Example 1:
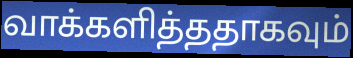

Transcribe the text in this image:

வாக்களித்ததாகவும்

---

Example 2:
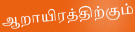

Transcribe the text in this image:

ஆறாயிரத்திற்கும்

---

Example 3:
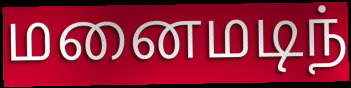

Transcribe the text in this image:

மனைமடிந்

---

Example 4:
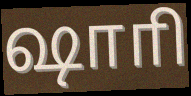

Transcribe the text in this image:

ஷாரி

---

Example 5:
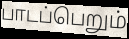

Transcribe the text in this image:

பாடப்பெறும்